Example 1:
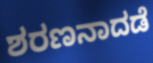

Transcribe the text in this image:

ಶರಣನಾದಡೆ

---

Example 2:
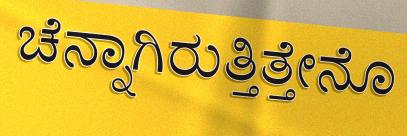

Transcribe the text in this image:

ಚೆನ್ನಾಗಿರುತ್ತಿತ್ತೇನೊ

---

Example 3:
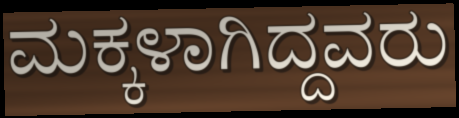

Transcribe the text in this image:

ಮಕ್ಕಳಾಗಿದ್ದವರು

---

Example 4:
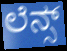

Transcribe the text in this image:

ಲೆನ್ಸ್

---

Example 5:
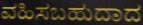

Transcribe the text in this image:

ವಹಿಸಬಹುದಾದ